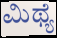
ಮಿಥ್ಯೆ